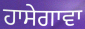
ਹਾਸੇਗਾਵਾ